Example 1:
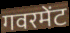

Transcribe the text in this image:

गवरमेंट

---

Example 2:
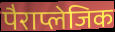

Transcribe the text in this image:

पैराप्लेजिक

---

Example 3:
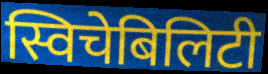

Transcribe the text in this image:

स्विचेबिलिटी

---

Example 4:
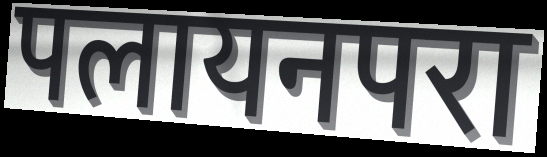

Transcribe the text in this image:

पलायनपरा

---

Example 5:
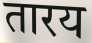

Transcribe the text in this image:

तारय